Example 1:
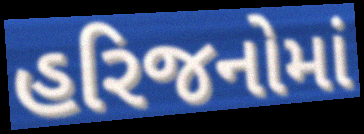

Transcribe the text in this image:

હરિજનોમાં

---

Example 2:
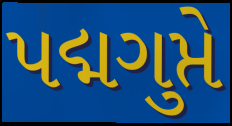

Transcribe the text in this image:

પદ્મગુપ્તે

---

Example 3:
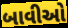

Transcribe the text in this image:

બાવીઓ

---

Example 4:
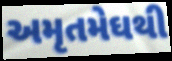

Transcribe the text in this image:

અમૃતમેઘથી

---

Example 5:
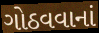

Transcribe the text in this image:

ગોઠવવાનાં